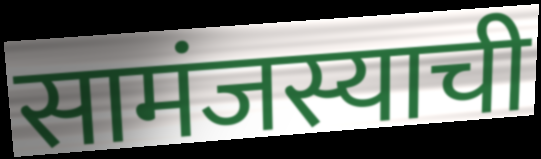
सामंजस्याची